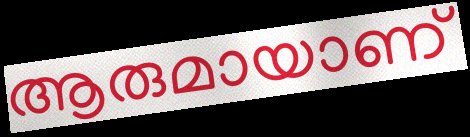
ആരുമായാണ്